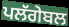
ਪਲੱਗੇਬਲ